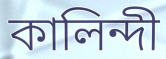
কালিন্দী